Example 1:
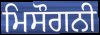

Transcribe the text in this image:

ਮਿਸੌਗਨੀ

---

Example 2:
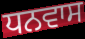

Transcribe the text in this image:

ਧਨਵਾਸ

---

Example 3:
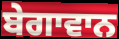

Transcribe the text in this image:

ਬੇਗਾਵਾਨ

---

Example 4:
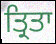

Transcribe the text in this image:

ਤ੍ਰਿਤਾ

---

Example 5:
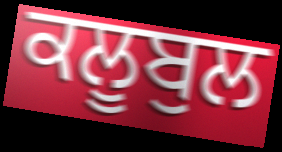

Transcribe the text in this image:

ਕਲੂਬੁਲ